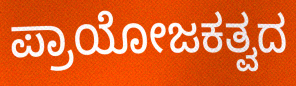
ಪ್ರಾಯೋಜಕತ್ವದ